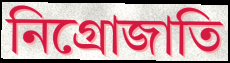
নিগ্রোজাতি